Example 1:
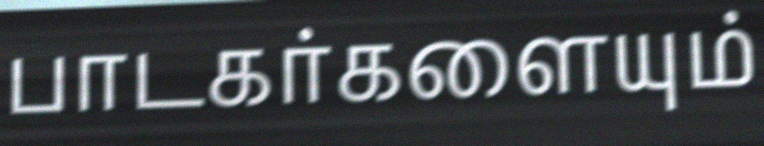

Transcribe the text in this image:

பாடகர்களையும்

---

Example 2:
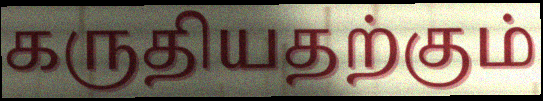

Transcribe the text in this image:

கருதியதற்கும்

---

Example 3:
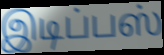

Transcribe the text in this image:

இடிப்பஸ்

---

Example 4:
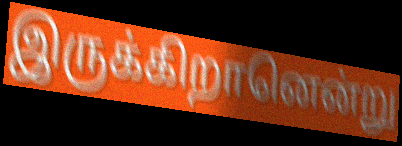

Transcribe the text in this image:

இருக்கிறானென்று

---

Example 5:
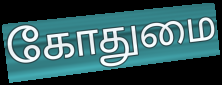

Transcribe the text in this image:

கோதுமை